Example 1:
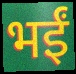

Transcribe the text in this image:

भईं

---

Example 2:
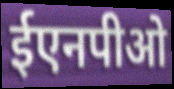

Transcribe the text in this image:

ईएनपीओ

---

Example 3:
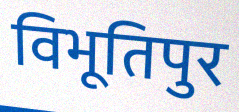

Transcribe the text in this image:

विभूतिपुर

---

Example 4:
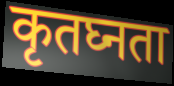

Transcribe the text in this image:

कृतघ्नता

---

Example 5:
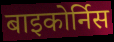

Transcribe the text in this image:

बाइकोर्निस